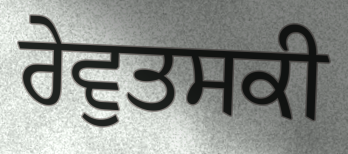
ਰੇਵੁਤਸਕੀ